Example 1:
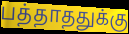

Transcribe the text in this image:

பத்தாததுக்கு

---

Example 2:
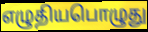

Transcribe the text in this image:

எழுதியபொழுது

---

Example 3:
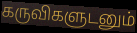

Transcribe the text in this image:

கருவிகளுடனும்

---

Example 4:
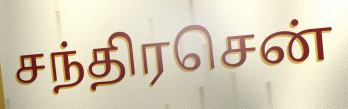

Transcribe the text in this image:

சந்திரசென்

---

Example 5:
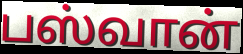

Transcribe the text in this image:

பஸ்வான்